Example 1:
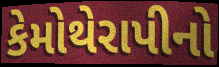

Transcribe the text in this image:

કેમોથેરાપીનો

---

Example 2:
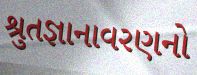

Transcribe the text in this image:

શ્રુતજ્ઞાનાવરણનો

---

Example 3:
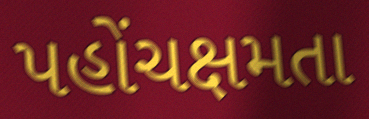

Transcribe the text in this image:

પહોંચક્ષમતા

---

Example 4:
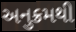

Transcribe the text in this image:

અનુક્રમથી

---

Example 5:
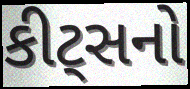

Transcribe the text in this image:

કીટ્સનો